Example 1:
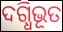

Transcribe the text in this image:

ଦଗ୍ଧିଭୂତ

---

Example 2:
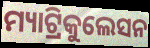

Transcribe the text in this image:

ମ୍ୟାଟ୍ରିକୁଲେସନ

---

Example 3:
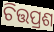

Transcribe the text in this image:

ଚିତ୍ତପ୍ରଶ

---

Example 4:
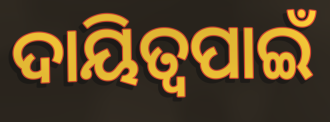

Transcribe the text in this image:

ଦାୟିତ୍ୱପାଇଁ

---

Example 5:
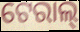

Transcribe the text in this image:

ଟେରାଲ୍